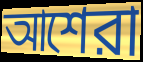
আশেরা